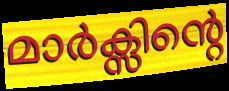
മാർക്സിന്റെ